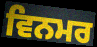
ਵਿਨਮਰ